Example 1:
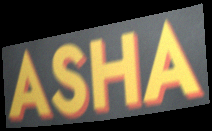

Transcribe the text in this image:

ASHA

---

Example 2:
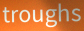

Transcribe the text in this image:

troughs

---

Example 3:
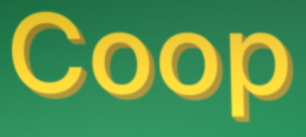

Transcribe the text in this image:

Coop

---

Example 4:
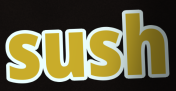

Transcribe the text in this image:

sush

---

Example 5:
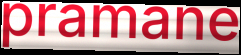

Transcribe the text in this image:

pramane